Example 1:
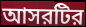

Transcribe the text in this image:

আসরটির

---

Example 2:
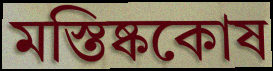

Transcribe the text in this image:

মস্তিষ্ককোষ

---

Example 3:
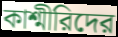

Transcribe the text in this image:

কাশ্মীরিদের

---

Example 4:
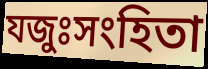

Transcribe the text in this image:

যজুঃসংহিতা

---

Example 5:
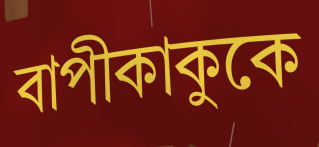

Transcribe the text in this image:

বাপীকাকুকে